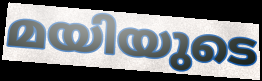
മയിയുടെ